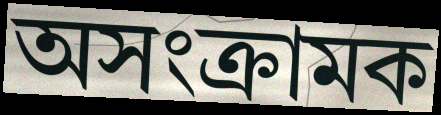
অসংক্রামক